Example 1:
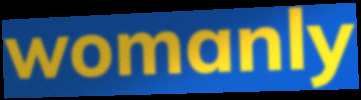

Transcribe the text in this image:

womanly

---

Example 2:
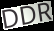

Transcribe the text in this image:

DDR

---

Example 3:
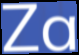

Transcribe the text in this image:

Za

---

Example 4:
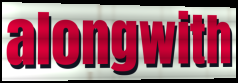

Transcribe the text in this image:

alongwith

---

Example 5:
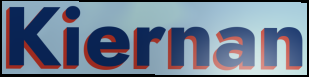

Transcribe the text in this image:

Kiernan